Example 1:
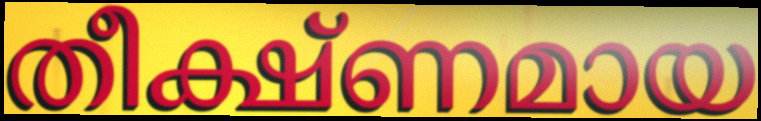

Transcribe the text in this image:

തീക്ഷ്ണമായ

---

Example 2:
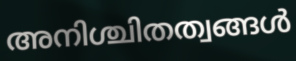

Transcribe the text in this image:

അനിശ്ചിതത്വങ്ങൾ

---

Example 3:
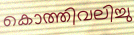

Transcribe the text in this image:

കൊത്തിവലിച്ചു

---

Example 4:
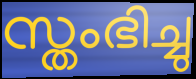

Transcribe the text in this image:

സ്തംഭിച്ചു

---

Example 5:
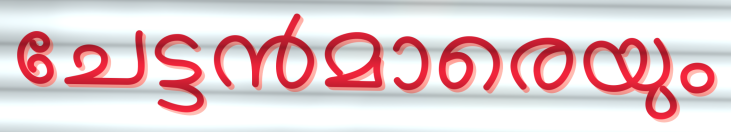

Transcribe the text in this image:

ചേട്ടൻമാരെയും